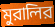
মুরালির